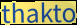
thakto